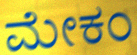
ಮೇಕಂ